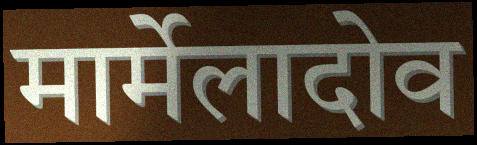
मार्मेलादोव